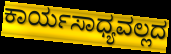
ಕಾರ್ಯಸಾಧ್ಯವಲ್ಲದ